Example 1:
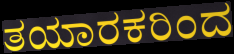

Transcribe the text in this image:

ತಯಾರಕರಿಂದ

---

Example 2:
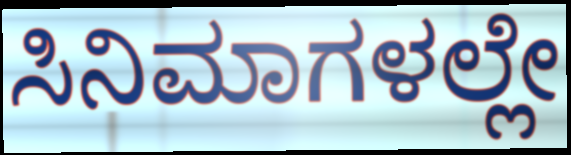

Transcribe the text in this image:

ಸಿನಿಮಾಗಳಲ್ಲೇ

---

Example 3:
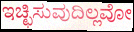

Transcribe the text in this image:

ಇಚ್ಛಿಸುವುದಿಲ್ಲವೋ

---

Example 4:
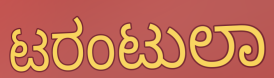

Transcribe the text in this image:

ಟರಂಟುಲಾ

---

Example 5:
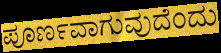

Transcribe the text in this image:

ಪೂರ್ಣವಾಗುವುದೆಂದು